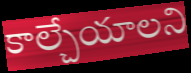
కాల్చేయాలని